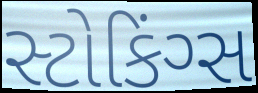
સ્ટોકિંગ્સ